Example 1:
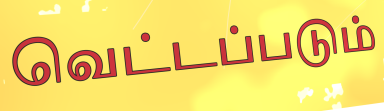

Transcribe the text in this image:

வெட்டப்படும்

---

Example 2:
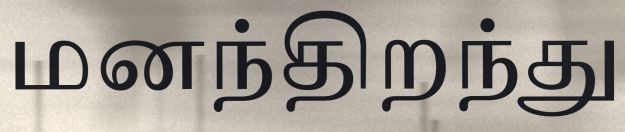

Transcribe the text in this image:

மனந்திறந்து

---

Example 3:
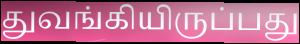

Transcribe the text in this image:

துவங்கியிருப்பது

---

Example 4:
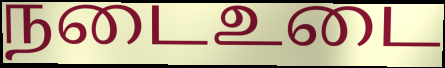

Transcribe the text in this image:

நடைஉடை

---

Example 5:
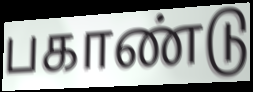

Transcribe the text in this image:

பகாண்டு